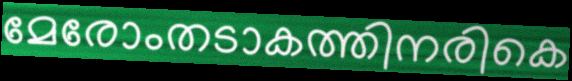
മേരോംതടാകത്തിനരികെ